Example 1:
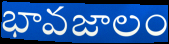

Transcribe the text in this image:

భావజాలం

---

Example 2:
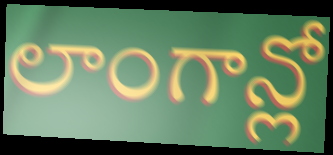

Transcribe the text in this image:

లాంగాన్లో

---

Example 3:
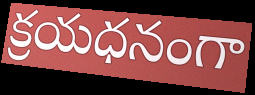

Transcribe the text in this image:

క్రయధనంగా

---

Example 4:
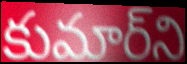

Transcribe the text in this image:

కుమార్‌ని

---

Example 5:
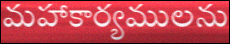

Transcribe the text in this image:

మహాకార్యములను